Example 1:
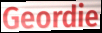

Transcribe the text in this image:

Geordie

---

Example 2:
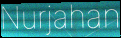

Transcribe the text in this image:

Nurjahan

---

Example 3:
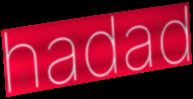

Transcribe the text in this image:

hadad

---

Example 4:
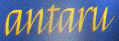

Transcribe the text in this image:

antaru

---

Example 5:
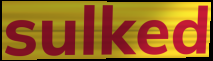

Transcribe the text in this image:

sulked